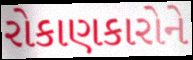
રોકાણકારોને